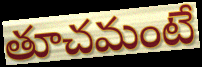
తూచమంటే